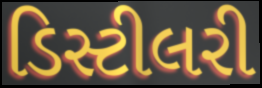
ડિસ્ટીલરી